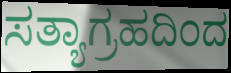
ಸತ್ಯಾಗ್ರಹದಿಂದ